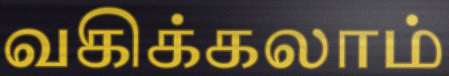
வகிக்கலாம்